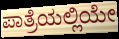
ಪಾತ್ರೆಯಲ್ಲಿಯೇ